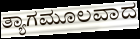
ತ್ಯಾಗಮೂಲವಾದ